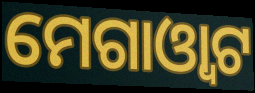
ମେଗାଓ୍ଵାଟ